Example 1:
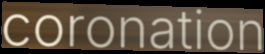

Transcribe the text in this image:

coronation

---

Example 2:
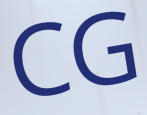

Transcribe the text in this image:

CG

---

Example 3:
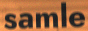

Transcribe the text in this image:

samle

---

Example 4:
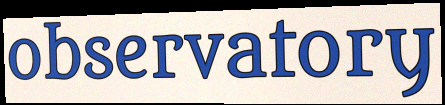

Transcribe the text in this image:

observatory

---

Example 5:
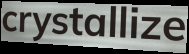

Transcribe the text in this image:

crystallize